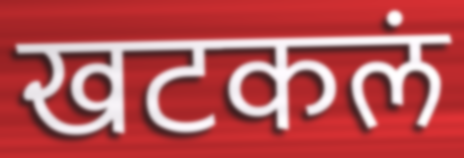
खटकलं